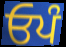
ਓਪੰ